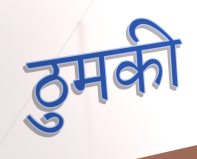
ठुमकी